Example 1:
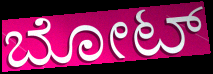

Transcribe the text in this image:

ಬೋಟ್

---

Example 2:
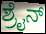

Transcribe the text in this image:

ಶ್ರೈನ್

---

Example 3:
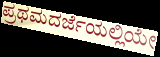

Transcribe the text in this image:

ಪ್ರಥಮದರ್ಜೆಯಲ್ಲಿಯೇ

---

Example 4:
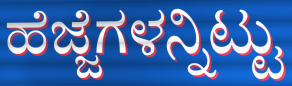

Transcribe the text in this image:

ಹೆಜ್ಜೆಗಳನ್ನಿಟ್ಟು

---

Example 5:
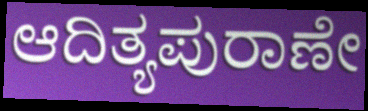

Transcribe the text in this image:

ಆದಿತ್ಯಪುರಾಣೇ